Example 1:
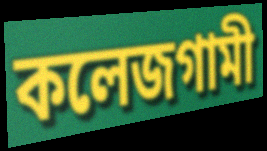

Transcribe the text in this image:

কলেজগামী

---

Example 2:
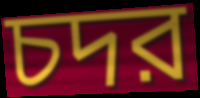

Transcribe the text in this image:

চদর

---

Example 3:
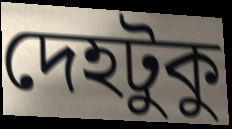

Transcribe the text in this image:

দেহটুকু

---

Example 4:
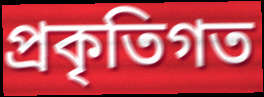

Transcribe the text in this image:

প্রকৃতিগত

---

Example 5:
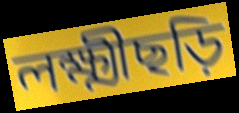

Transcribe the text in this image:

লক্ষ্মীছড়ি